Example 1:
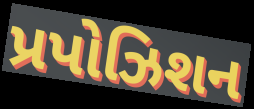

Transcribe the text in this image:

પ્રપોઝિશન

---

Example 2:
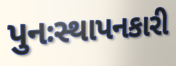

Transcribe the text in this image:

પુનઃસ્થાપનકારી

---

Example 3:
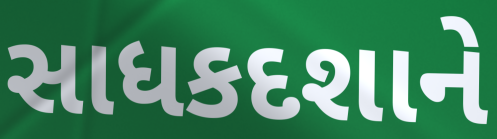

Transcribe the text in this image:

સાધકદશાને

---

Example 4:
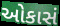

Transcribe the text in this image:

ઓકાસં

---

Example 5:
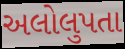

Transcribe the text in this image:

અલોલુપતા